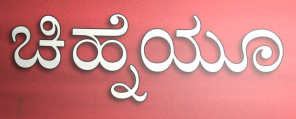
ಚಿಹ್ನೆಯೂ